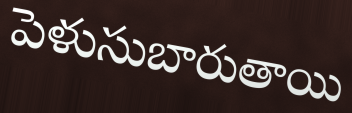
పెళుసుబారుతాయి